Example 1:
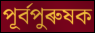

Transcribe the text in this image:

পূৰ্বপুৰুষক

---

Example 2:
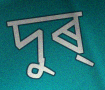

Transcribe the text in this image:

দুৰ্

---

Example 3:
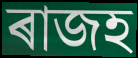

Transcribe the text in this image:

ৰাজহ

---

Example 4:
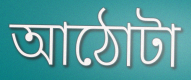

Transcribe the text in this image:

আঠোটা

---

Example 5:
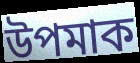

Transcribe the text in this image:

উপমাক